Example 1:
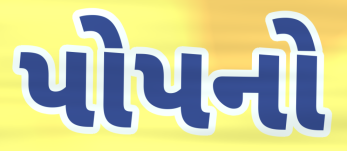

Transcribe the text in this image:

પોપનો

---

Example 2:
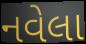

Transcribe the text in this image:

નવેલા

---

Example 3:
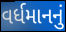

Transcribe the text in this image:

વર્ધમાનનું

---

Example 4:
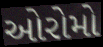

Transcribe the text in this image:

ઓરોમો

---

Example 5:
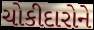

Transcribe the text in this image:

ચોકીદારોને